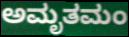
ಅಮೃತಮಂ